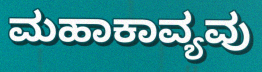
ಮಹಾಕಾವ್ಯವು